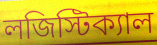
লজিস্টিক্যাল